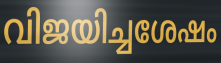
വിജയിച്ചശേഷം